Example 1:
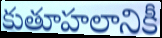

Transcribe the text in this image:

కుతూహలానికీ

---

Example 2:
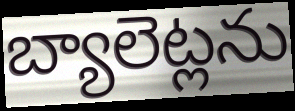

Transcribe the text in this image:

బ్యాలెట్లను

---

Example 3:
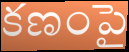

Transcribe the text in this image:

కణంపై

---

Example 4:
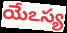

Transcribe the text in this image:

యేఽస్య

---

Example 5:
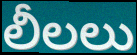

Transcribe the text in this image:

లీలలు